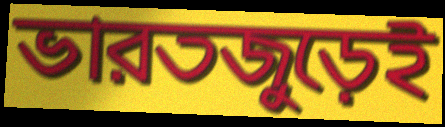
ভারতজুড়েই